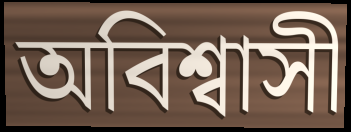
অবিশ্বাসী